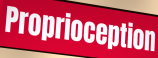
Proprioception